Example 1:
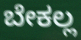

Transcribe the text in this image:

ಬೇಕಲ್ಲ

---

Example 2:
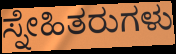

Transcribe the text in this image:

ಸ್ನೇಹಿತರುಗಳು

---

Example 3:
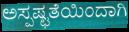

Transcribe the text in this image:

ಅಸ್ಪಷ್ಟತೆಯಿಂದಾಗಿ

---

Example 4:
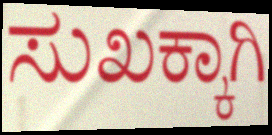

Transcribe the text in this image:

ಸುಖಕ್ಕಾಗಿ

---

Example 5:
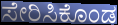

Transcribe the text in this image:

ಸೇರಿಸಿಕೊಂಡ